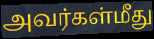
அவர்கள்மீது